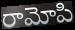
రామోపి